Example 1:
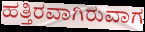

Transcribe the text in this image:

ಹತ್ತಿರವಾಗಿರುವಾಗ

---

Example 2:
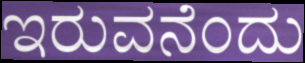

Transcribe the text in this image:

ಇರುವನೆಂದು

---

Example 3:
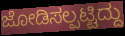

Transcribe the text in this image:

ಜೋಡಿಸಲ್ಪಟ್ಟಿದ್ದು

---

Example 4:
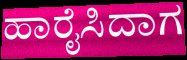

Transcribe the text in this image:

ಹಾರೈಸಿದಾಗ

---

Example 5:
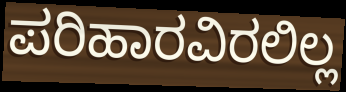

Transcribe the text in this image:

ಪರಿಹಾರವಿರಲಿಲ್ಲ